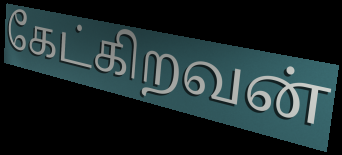
கேட்கிறவன்